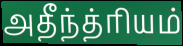
அதீந்த்ரியம்